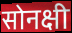
सोनक्षी